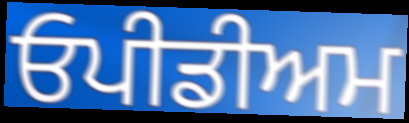
ਓਪੀਡੀਅਮ